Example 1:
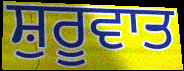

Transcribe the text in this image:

ਸ਼ੁਰੂਵਾਤ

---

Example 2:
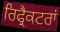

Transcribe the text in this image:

ਰਿਫ੍ਰੈਕਟਰਾਂ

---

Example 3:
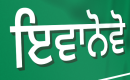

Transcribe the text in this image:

ਇਵਾਨੋਵੋ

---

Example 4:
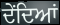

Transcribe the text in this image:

ਦੇਂਦਿਆਂ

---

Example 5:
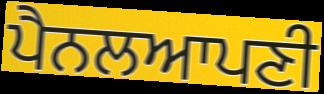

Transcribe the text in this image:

ਪੈਨਲਆਪਣੀ